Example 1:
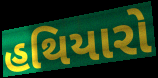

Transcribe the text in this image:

હથિયારો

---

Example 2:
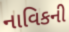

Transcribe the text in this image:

નાવિકની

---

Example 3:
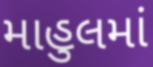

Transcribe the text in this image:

માહુલમાં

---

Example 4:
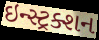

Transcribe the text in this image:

ઇન્સ્ટ્રક્શન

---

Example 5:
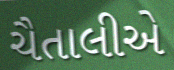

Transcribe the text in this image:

ચૈતાલીએ